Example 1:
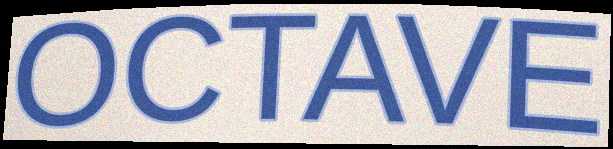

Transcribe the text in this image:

OCTAVE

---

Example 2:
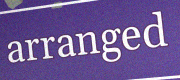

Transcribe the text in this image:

arranged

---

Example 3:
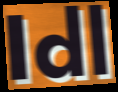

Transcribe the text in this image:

Idl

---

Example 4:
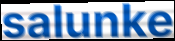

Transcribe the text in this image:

salunke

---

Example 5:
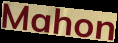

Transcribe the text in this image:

Mahon